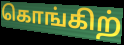
கொங்கிற்